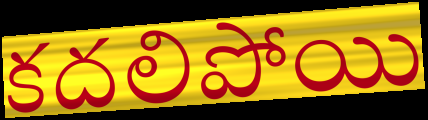
కదలిపోయి